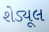
શેડ્યૂલ